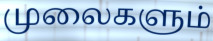
முலைகளும்